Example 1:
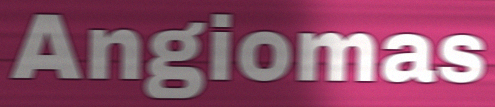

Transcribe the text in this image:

Angiomas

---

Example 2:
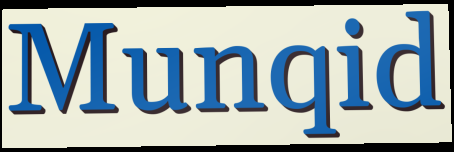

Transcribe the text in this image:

Munqid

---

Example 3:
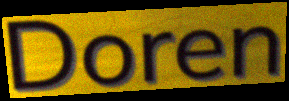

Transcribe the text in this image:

Doren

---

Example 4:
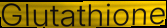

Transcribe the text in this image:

Glutathione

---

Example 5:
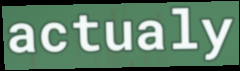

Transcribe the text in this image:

actualy